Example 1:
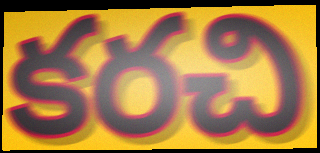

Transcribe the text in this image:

కరచి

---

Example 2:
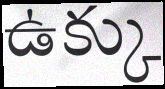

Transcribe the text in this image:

ఉక్కు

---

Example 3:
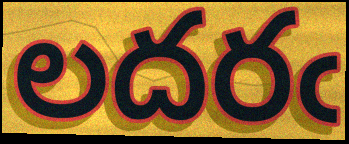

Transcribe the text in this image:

లదరఁ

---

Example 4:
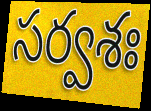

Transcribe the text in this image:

సర్వశః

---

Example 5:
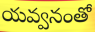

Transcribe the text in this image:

యవ్వనంతో